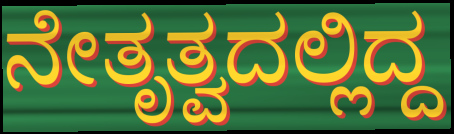
ನೇತೃತ್ವದಲ್ಲಿದ್ದ